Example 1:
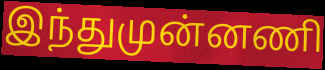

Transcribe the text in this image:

இந்துமுன்னணி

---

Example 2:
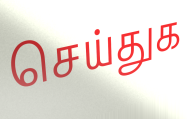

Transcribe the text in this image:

செய்துக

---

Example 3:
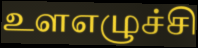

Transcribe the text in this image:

உளஎழுச்சி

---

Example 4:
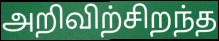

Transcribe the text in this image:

அறிவிற்சிறந்த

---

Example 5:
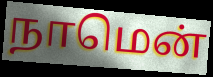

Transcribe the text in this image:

நாமென்